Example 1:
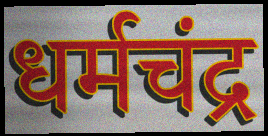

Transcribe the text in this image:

धर्मचंद्र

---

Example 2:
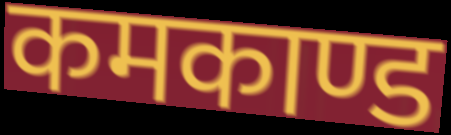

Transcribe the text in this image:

कमकाण्ड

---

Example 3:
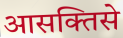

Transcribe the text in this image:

आसक्तिसे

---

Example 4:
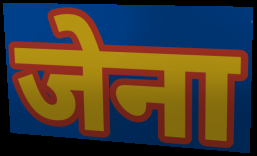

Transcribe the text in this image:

जेना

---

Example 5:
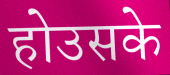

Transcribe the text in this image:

होउसके